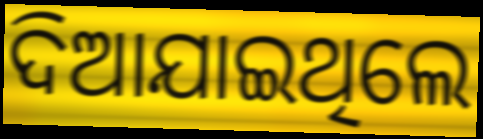
ଦିଆଯାଇଥିଲେ